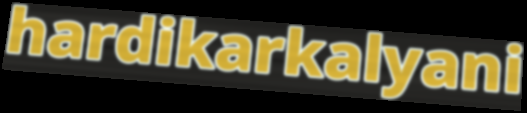
hardikarkalyani